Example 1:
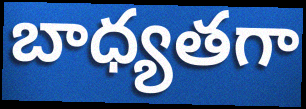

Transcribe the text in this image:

బాధ్యతగా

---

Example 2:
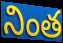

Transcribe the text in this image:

నింత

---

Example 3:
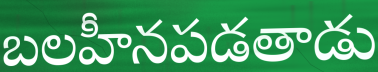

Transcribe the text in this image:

బలహీనపడతాడు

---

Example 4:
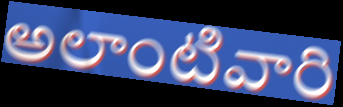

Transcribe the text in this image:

అలాంటివారి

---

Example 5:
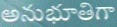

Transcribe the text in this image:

అనుభూతిగా